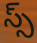
స్స్